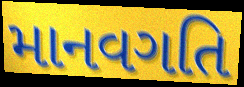
માનવગતિ